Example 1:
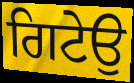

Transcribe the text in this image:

ਗਿਟੇਉ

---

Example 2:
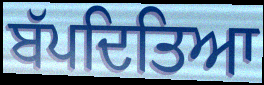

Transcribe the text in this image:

ਬੱਪਦਿਤਿਆ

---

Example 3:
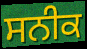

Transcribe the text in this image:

ਸਨੀਕ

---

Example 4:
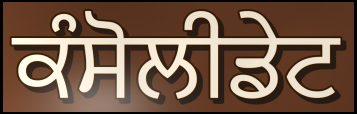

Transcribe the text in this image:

ਕੰਸੋਲੀਡੇਟ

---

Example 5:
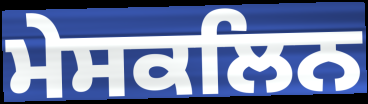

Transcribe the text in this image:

ਮੇਸਕਲਿਨ